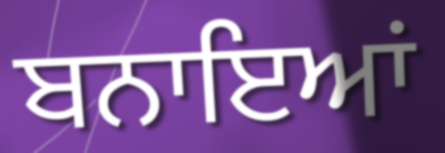
ਬਨਾਇਆਂ